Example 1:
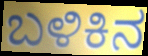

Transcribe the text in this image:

ಬಳಿಕಿನ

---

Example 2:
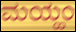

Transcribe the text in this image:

ಮಯ್ಹಂ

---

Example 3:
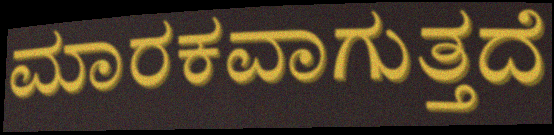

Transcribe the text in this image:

ಮಾರಕವಾಗುತ್ತದೆ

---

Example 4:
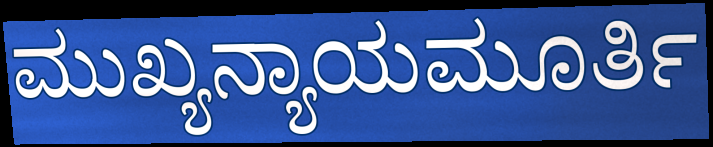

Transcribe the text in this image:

ಮುಖ್ಯನ್ಯಾಯಮೂರ್ತಿ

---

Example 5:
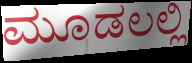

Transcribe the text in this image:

ಮೂಡಲಲ್ಲಿ